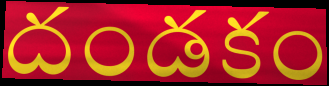
దండకం